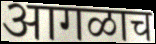
आगळाच